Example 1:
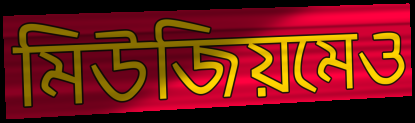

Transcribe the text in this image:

মিউজিয়মেও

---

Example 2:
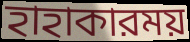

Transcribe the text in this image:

হাহাকারময়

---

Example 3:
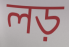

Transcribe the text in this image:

লড়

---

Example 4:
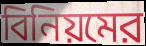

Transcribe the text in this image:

বিনিয়মের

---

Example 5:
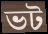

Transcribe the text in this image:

ভট